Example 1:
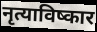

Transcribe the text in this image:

नृत्याविष्कार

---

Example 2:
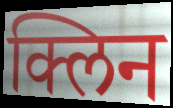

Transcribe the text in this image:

क्लिन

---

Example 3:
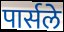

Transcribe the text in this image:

पार्सले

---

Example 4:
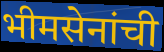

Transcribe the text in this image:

भीमसेनांची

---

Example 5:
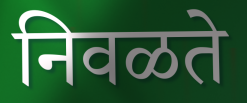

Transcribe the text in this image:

निवळते